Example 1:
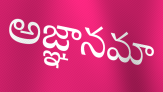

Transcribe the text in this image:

అజ్ఞానమా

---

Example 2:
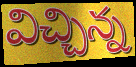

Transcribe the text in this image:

విచ్చిన్న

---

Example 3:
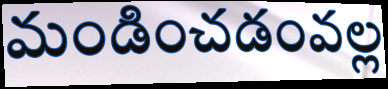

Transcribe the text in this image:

మండించడంవల్ల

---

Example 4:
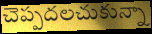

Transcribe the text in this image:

చెప్పదలచుకున్నా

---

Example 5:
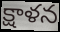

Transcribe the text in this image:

క్షాళన